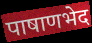
पाषाणभेद